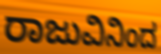
ರಾಜುವಿನಿಂದ